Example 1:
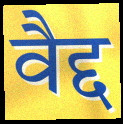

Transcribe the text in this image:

वैद्द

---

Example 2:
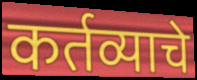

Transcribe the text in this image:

कर्तव्याचे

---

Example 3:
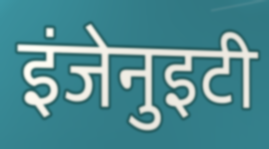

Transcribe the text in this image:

इंजेनुइटी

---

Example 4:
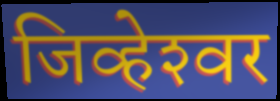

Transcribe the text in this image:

जिव्हेश्वर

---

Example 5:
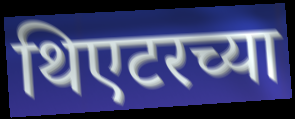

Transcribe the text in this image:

थिएटरच्या